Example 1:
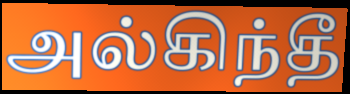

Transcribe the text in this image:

அல்கிந்தீ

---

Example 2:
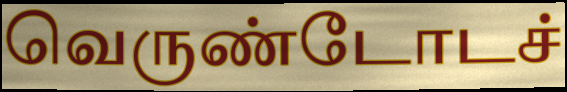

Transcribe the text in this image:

வெருண்டோடச்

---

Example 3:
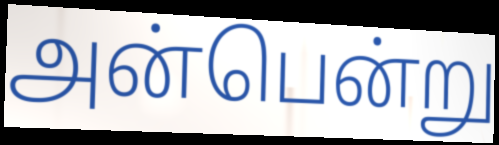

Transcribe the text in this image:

அன்பென்று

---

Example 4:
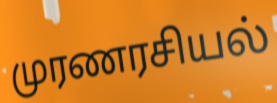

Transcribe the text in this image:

முரணரசியல்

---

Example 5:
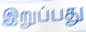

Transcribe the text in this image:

இறுப்பது